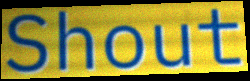
Shout